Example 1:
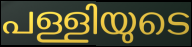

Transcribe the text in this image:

പള്ളിയുടെ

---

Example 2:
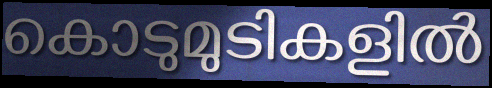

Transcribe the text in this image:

കൊടുമുടികളിൽ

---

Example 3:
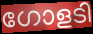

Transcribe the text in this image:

ഗോളടി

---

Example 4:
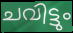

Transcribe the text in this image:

ചവിട്ടും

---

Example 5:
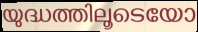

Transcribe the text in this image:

യുദ്ധത്തിലൂടെയോ